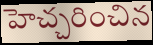
హెచ్చరించిన